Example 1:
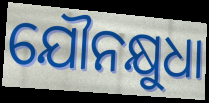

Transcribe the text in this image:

ଯୌନକ୍ଷୁଧା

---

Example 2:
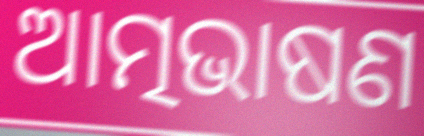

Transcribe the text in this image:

ଆତ୍ମଭାଷଣ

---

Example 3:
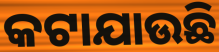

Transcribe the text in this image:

କଟାଯାଉଛି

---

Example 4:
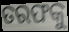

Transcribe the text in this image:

ତରଫକୁ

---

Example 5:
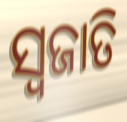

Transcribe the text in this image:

ସ୍ବଜାତି